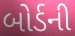
બોર્ડની